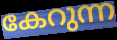
കേറുന്ന